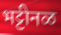
भट्टीनळ